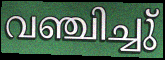
വഞ്ചിച്ചു്